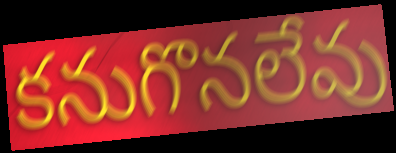
కనుగొనలేవు